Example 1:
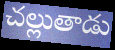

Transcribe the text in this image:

చల్లుతాడు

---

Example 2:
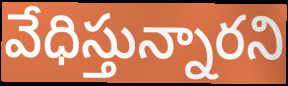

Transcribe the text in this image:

వేధిస్తున్నారని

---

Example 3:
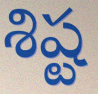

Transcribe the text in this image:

శిష్ట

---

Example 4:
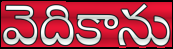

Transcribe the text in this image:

వెదికాను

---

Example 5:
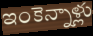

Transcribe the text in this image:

ఇంకెన్నాళ్లు